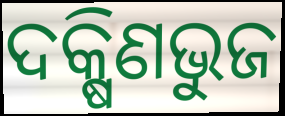
ଦକ୍ଷିଣଭୁଜ